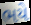
ભયે